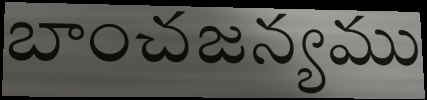
బాంచజన్యము